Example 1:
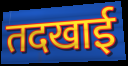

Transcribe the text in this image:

तदखाई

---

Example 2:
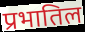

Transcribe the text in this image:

प्रभातिल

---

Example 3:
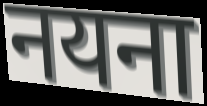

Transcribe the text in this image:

नयना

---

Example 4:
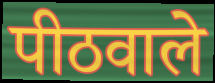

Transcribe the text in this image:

पीठवाले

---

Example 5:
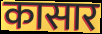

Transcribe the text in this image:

कासार